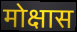
मोक्षास